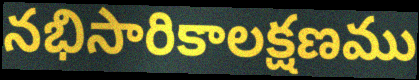
నభిసారికాలక్షణము